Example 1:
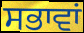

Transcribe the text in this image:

ਸਭਾਵਾਂ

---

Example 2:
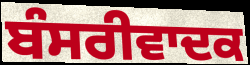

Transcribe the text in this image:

ਬੰਸਰੀਵਾਦਕ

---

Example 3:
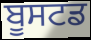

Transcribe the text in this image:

ਬੂਸਟਡ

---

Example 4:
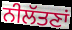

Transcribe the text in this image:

ਨੀਲੱਤਣਾਂ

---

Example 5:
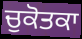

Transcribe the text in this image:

ਚੁਕੋਤਕਾ